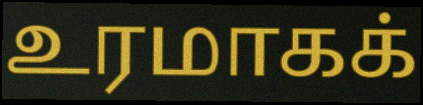
உரமாகக்